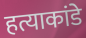
हत्याकांडे